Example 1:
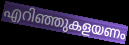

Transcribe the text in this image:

എറിഞ്ഞുകളയണം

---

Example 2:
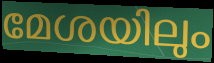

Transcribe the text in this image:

മേശയിലും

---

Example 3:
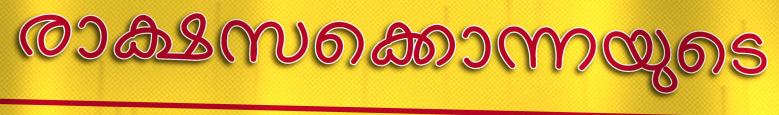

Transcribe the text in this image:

രാക്ഷസക്കൊന്നയുടെ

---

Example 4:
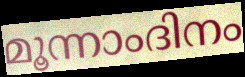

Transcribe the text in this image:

മൂന്നാംദിനം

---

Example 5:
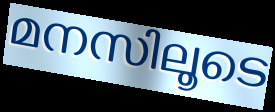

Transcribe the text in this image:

മനസിലൂടെ